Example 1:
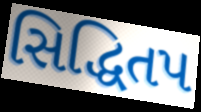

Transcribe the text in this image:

સિદ્ધિતપ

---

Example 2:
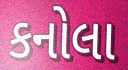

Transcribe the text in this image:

કનોલા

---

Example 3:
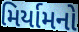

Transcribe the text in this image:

મિર્યામનો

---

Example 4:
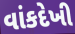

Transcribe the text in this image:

વાંકદેખી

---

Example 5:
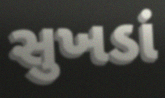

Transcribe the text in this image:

સુખડાં